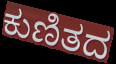
ಕುಣಿತದ